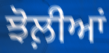
ਝੋਲ਼ੀਆਂ